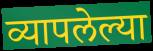
व्यापलेल्या